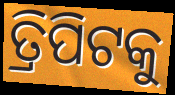
ତ୍ରିପିଟକୁ